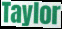
Taylor